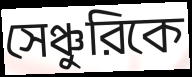
সেঞ্চুরিকে